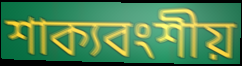
শাক্যবংশীয়